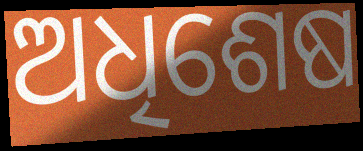
ଅଧିଶେଷ